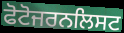
ਫੋਟੋਜਰਨਲਿਸਟ